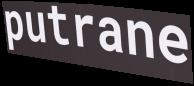
putrane